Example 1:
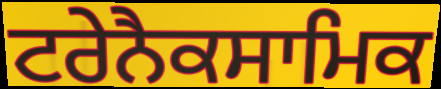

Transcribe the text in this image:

ਟਰੇਨੈਕਸਾਮਿਕ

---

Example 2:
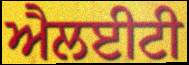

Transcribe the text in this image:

ਐਲਈਟੀ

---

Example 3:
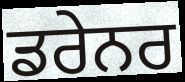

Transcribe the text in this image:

ਡਰੇਨਰ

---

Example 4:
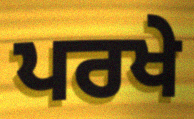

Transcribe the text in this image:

ਪਰਖੇ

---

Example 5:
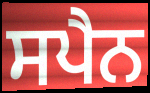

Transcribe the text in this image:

ਸਪੈਨ